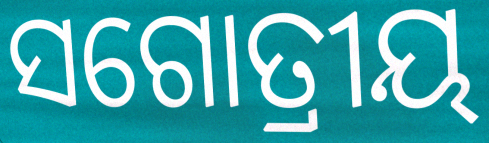
ସଗୋତ୍ରୀୟ